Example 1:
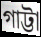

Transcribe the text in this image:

গাট্টা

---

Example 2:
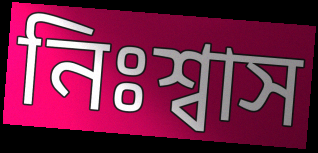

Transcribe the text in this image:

নিঃশ্বাস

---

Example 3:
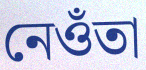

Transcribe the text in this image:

নেওঁতা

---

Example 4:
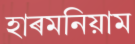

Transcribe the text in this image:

হাৰমনিয়াম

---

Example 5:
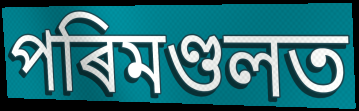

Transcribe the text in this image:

পৰিমণ্ডলত